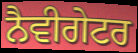
ਨੈਵੀਗੇਟਰ